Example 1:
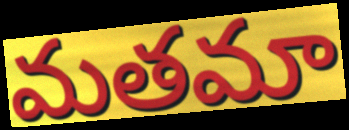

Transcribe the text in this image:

మతమా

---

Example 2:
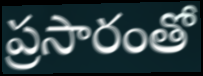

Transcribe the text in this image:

ప్రసారంతో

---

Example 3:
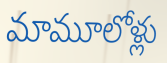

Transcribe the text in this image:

మామూలోళ్లు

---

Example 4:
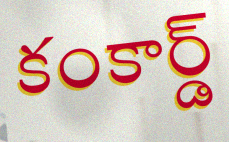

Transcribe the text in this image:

కంకార్డ్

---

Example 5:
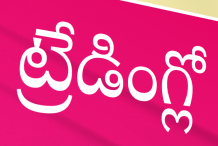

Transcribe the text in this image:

ట్రేడింగ్లో